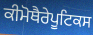
ਕੀਮੋਥੈਰੇਪੂਟਿਕਸ